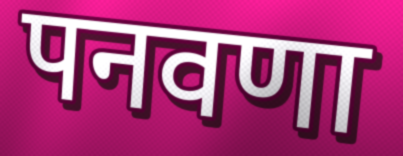
पनवणा